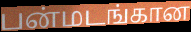
பன்மடங்கான